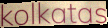
kolkatas